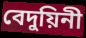
বেদুয়িনী